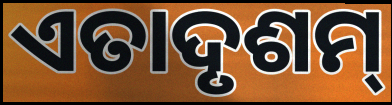
ଏତାଦୃଶମ୍